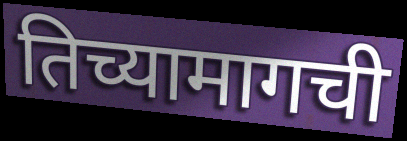
तिच्यामागची